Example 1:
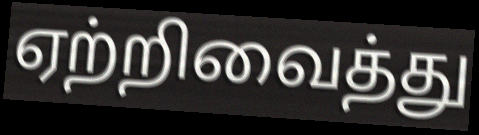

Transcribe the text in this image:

ஏற்றிவைத்து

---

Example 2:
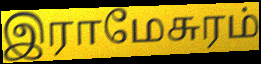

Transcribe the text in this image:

இராமேசுரம்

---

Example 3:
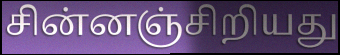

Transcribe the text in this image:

சின்னஞ்சிறியது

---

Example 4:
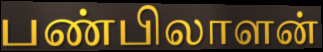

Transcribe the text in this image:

பண்பிலாளன்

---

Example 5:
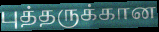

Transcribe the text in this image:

புத்தருக்கான